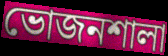
ভোজনশালা